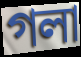
গলা